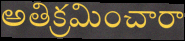
అతిక్రమించారా